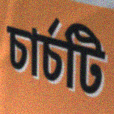
চার্চটি